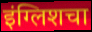
इंग्लिशचा